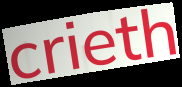
crieth